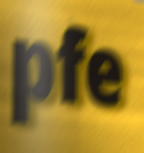
pfe